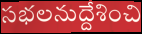
సభలనుద్దేశించి